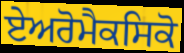
ਏਅਰੋਮੈਕਸਿਕੋ